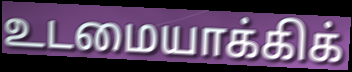
உடமையாக்கிக்